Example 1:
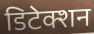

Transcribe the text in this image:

डिटेक्शन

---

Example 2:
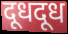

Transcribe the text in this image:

दूधदूध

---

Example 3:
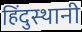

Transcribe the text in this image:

हिंदुस्थानी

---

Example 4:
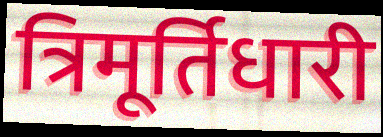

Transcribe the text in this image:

त्रिमूर्तिधारी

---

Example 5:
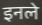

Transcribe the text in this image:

इनले